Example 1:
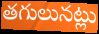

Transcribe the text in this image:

తగులునట్లు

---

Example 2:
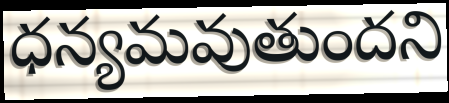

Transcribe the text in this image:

ధన్యమవుతుందని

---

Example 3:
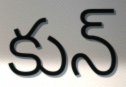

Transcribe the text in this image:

కున్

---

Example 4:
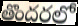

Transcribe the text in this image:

తొందరలో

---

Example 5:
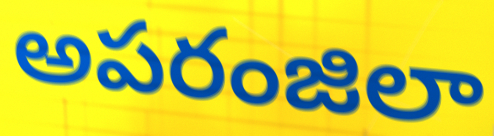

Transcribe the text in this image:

అపరంజిలా